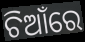
ଚିଆଁରେ